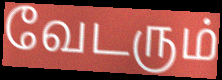
வேடரும்